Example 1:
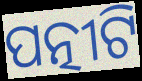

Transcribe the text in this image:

ପତ୍ନୀଟି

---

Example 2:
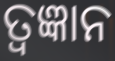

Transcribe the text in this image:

ତ୍ୱଜ୍ଞାନ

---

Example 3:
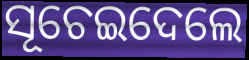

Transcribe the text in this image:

ସୂଚେଇଦେଲେ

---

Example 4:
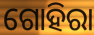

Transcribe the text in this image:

ଗୋହିରା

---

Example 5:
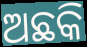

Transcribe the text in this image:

ଅଛକି